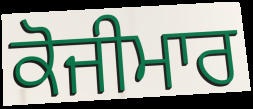
ਕੋਜੀਮਾਰ